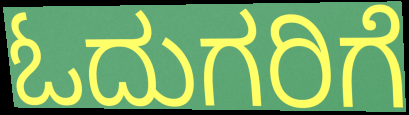
ಓದುಗರಿಗೆ